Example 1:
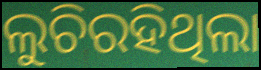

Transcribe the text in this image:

ଲୁଚିରହିଥିଲା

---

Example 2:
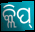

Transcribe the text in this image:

କ୍ଲିପ୍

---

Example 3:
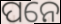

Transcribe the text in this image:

ପନେ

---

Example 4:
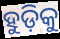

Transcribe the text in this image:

ହୁଡ଼ିକୁ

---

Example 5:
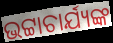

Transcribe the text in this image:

ଭଟ୍ଟାଚାର୍ଯ୍ୟଙ୍କ